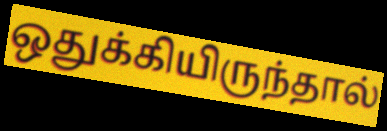
ஒதுக்கியிருந்தால்